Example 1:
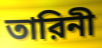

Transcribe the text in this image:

তারিনী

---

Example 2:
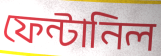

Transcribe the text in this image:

ফেন্টানিল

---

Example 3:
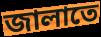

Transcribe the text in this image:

জালাতে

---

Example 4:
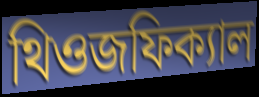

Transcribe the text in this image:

থিওজফিক্যাল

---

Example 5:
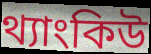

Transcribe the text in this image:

থ্যাংকিউ